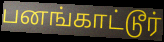
பனங்காட்டூர்